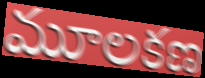
మూలకణ